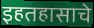
इहतहासाचे